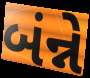
બંન્ને